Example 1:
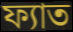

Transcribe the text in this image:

ফ্যাত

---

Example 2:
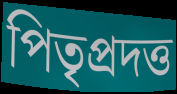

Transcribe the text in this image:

পিতৃপ্রদত্ত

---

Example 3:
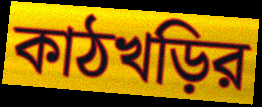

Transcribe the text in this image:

কাঠখড়ির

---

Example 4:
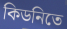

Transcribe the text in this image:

কিডনিতে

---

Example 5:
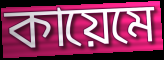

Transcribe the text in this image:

কায়েমে